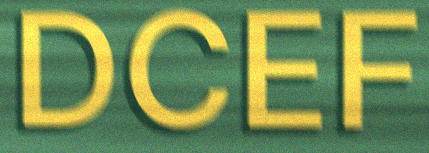
DCEF